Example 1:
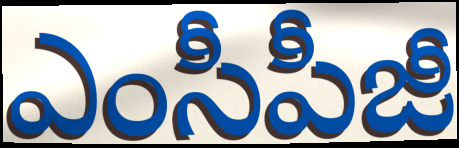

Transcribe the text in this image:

ఎంసీపీజీ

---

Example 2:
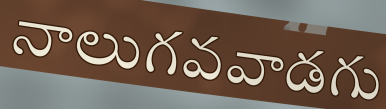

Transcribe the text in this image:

నాలుగవవాడగు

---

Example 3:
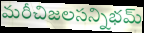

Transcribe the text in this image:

మరీచిజలసన్నిభమ్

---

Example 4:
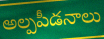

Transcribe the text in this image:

అల్పపీడనాలు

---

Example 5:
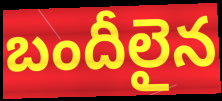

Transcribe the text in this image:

బందీలైన